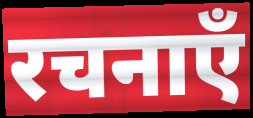
रचनाएँ